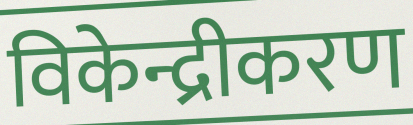
विकेन्द्रीकरण